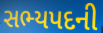
સભ્યપદની